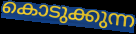
കൊടുക്കുന്ന